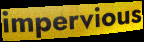
impervious